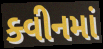
ક્વીનમાં